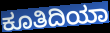
ಕೂತಿದಿಯಾ